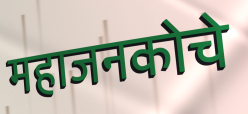
महाजनकोचे